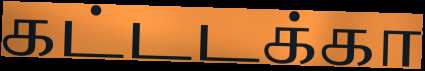
கட்டடக்கா